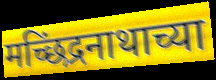
मच्छिंद्रनाथाच्या